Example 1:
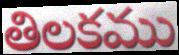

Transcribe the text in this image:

తిలకము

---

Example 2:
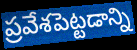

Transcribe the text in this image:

ప్రవేశపెట్టడాన్ని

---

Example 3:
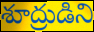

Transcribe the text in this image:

శూద్రుడిని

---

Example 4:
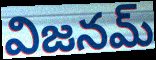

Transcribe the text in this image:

విజనమ్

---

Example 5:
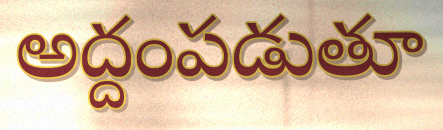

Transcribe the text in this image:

అద్దంపడుతూ